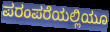
ಪರಂಪರೆಯಲ್ಲಿಯೂ